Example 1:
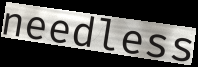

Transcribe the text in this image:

needless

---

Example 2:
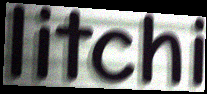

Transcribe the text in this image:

litchi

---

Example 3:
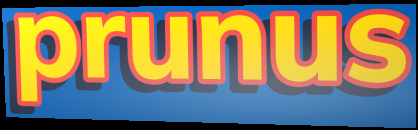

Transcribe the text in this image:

prunus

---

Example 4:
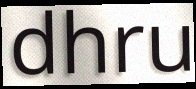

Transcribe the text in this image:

dhru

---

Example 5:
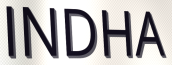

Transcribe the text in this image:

INDHA